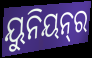
ୟୁନିୟନ୍‌ର